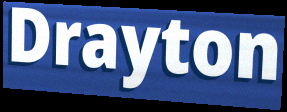
Drayton